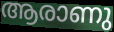
ആരാണു